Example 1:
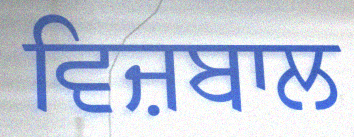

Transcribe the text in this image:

ਵਿਜ਼ਬਾਲ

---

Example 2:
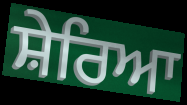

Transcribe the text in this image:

ਸ਼ੇਰਿਆ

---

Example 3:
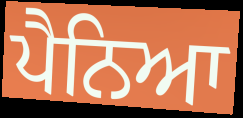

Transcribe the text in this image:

ਪੈਨਿਆ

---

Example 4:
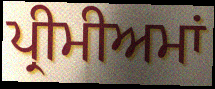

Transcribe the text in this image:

ਪ੍ਰੀਮੀਅਮਾਂ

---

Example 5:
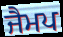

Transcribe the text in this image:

ਜੈਮਪ